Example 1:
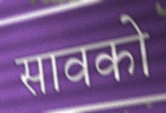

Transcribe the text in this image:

सावको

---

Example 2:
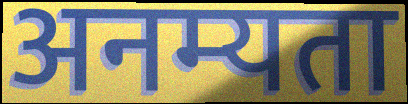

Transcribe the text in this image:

अनम्यता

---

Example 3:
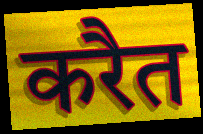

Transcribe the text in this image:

करैत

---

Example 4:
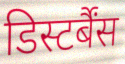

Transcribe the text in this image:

डिस्टर्बैंस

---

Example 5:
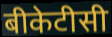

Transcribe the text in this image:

बीकेटीसी